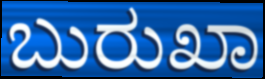
ಬುರುಖಾ